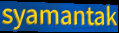
syamantak